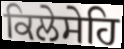
ਕਿਲੇਸੇਹਿ